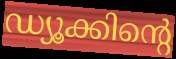
ഡ്യൂക്കിന്റെ